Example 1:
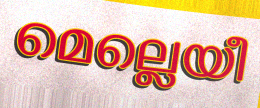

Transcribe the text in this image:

മെല്ലെയീ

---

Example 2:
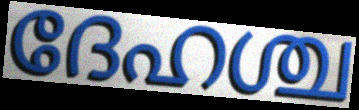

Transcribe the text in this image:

ദേഹശ്ച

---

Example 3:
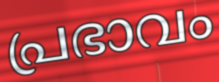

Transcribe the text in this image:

പ്രഭാവം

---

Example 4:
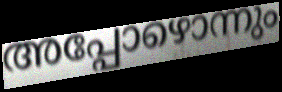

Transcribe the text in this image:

അപ്പോഴൊന്നും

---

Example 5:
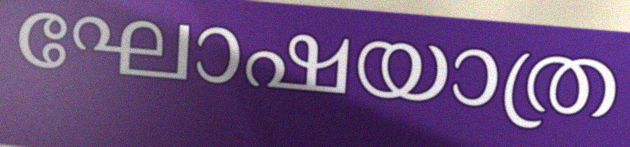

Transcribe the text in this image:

ഘോഷയാത്ര